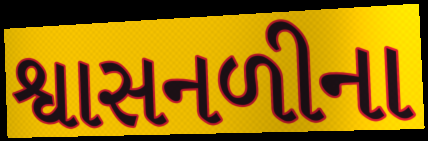
શ્વાસનળીના